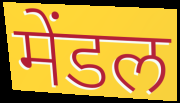
मेंडल